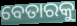
ବେତାରକୁ